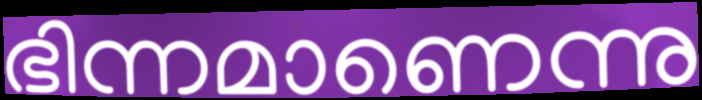
ഭിന്നമാണെന്നു